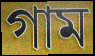
গাম